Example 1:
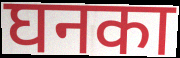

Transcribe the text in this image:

घनका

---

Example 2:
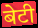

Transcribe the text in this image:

बेटी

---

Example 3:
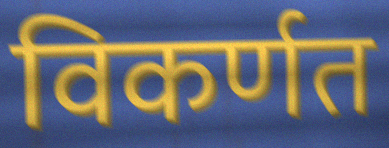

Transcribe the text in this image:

विकर्णत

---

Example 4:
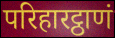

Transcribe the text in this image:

परिहारट्ठाणं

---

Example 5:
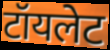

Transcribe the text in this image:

टॉयलेट